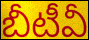
బీటీవీ